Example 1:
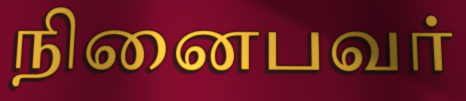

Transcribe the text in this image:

நினைபவர்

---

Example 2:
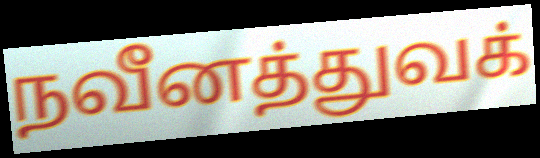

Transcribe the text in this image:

நவீனத்துவக்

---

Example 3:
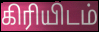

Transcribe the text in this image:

கிரியிடம்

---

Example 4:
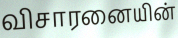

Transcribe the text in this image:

விசாரனையின்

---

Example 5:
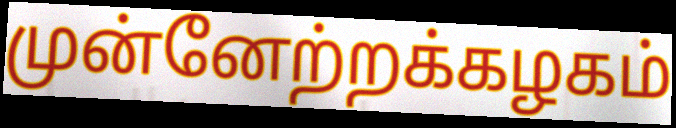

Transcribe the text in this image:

முன்னேற்றக்கழகம்